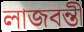
লাজবন্তী